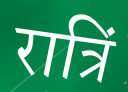
रात्रिं